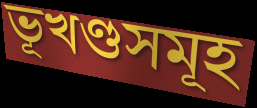
ভূখণ্ডসমূহ